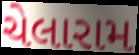
ચેલારામ